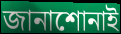
জানাশোনাই